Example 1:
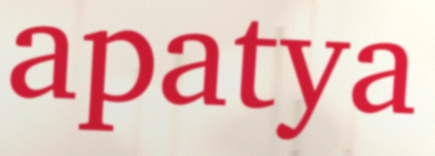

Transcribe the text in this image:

apatya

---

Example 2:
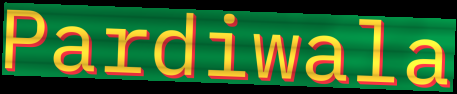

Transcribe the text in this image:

Pardiwala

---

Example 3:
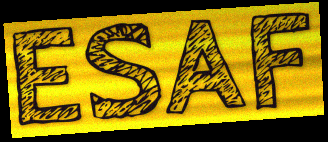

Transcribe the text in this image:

ESAF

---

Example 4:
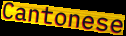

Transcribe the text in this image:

Cantonese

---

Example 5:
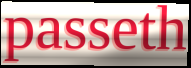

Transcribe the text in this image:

passeth